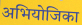
अभियोजिका